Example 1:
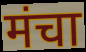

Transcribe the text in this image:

मंचा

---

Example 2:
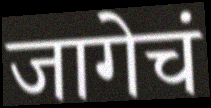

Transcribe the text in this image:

जागेचं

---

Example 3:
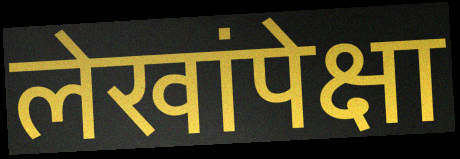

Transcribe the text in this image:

लेखांपेक्षा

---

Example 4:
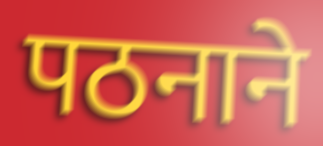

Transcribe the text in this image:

पठनाने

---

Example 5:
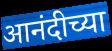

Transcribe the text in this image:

आनंदीच्या